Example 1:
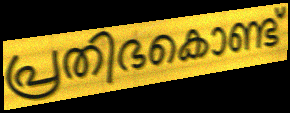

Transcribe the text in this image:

പ്രതിഭകൊണ്ട്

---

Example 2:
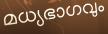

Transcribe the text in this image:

മധ്യഭാഗവും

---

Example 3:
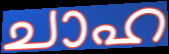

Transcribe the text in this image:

ചാഹ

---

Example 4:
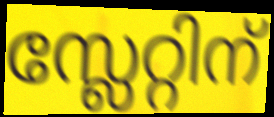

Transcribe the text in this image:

സ്ലേറ്റിന്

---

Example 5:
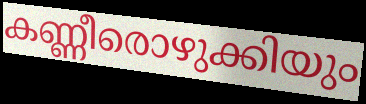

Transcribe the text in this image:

കണ്ണീരൊഴുക്കിയും